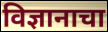
विज्ञानाचा